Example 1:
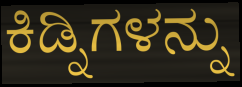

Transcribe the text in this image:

ಕಿಡ್ನಿಗಳನ್ನು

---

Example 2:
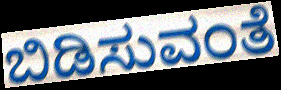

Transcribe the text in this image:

ಬಿಡಿಸುವಂತೆ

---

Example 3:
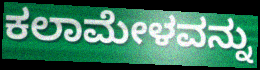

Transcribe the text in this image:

ಕಲಾಮೇಳವನ್ನು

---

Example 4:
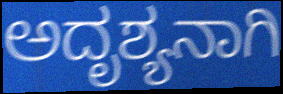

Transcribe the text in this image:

ಅದೃಶ್ಯನಾಗಿ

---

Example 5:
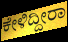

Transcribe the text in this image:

ಕೇಳಿದ್ದೀರಾ